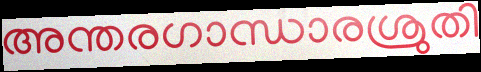
അന്തരഗാന്ധാരശ്രുതി